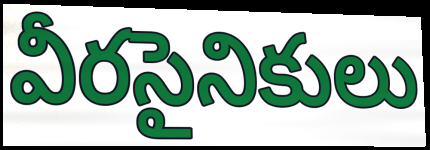
వీరసైనికులు